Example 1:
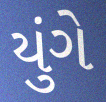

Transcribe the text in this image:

યુંગે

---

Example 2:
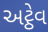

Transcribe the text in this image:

અટ્ઠેવ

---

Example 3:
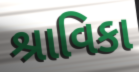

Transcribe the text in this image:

શ્રાવિકા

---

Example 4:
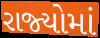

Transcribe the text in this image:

રાજ્‍યોમાં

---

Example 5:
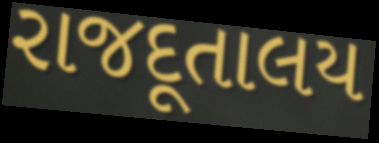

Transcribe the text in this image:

રાજદૂતાલય